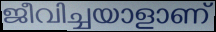
ജീവിച്ചയാളാണ്